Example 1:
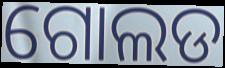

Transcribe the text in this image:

ଗୋଲଡ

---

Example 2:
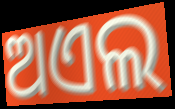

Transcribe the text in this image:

ଅଏଲ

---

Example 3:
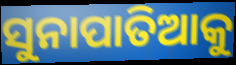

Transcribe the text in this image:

ସୁନାପାତିଆକୁ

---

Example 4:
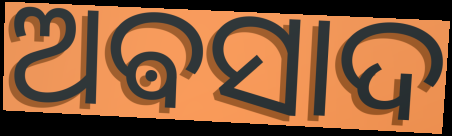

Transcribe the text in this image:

ଅଵସାଦ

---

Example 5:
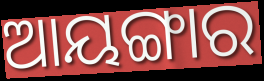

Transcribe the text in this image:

ଆୟଙ୍ଗାର